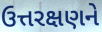
ઉત્તરક્ષણને